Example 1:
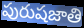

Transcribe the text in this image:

పురుషజాతి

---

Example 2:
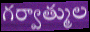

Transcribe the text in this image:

గర్వాత్ముల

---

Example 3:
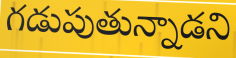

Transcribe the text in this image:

గడుపుతున్నాడని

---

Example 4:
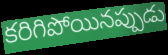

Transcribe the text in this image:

కరిగిపోయినప్పుడు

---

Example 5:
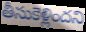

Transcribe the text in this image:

తీసుకెళ్లిందని